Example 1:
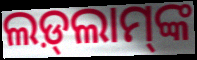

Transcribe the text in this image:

ଲଡ଼୍‍ଲାମ୍‍ଙ୍କ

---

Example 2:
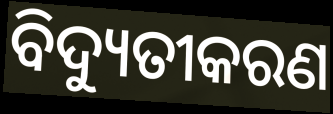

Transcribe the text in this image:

ବିଦ୍ୟୁତୀକରଣ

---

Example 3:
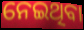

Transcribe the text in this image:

ନେଇଥିବା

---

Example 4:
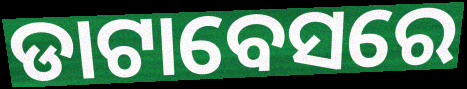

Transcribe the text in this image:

ଡାଟାବେସରେ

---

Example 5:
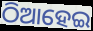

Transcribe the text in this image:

ଠିଆହେଇ